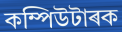
কম্পিউটাৰক